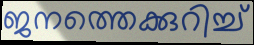
ജനത്തെക്കുറിച്ച്